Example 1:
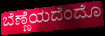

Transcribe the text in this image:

ಬೆಣ್ಣೆಯದೆಂದೊ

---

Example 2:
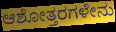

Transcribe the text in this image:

ಆಶೋತ್ತರಗಳೇನು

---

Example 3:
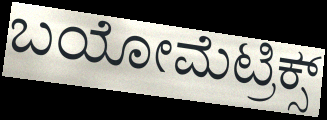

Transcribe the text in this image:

ಬಯೋಮೆಟ್ರಿಕ್ಸ್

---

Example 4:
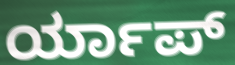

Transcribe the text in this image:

ರ್ಯಾಪ್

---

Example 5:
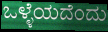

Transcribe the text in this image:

ಒಳ್ಳೆಯದೆಂದು